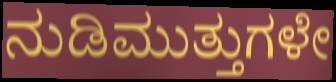
ನುಡಿಮುತ್ತುಗಳೇ